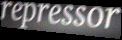
repressor